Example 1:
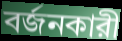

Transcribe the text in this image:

বর্জনকারী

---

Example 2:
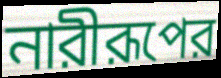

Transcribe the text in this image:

নারীরূপের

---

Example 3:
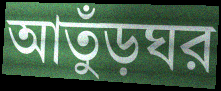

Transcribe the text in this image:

আতুঁড়ঘর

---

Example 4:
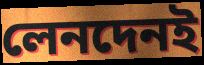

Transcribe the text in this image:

লেনদেনই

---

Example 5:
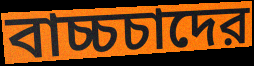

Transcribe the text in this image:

বাচ্চচাদের